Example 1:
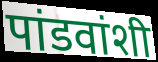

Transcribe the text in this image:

पांडवांशी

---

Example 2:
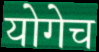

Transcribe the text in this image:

योगेच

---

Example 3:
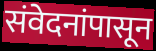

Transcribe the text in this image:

संवेदनांपासून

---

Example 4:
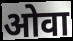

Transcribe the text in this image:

ओवा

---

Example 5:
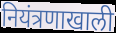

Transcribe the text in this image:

नियंत्रणाखाली